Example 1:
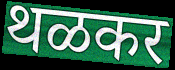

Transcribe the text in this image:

थळकर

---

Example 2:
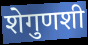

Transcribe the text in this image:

शेगुणशी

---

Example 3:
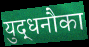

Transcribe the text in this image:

युद्धनौका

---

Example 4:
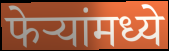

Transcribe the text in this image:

फेऱ्यांमध्ये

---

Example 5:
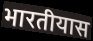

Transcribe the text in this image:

भारतीयास